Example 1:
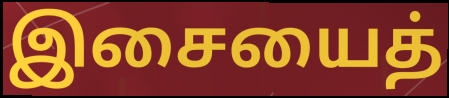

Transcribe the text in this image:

இசையைத்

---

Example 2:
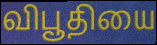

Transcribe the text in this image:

விபூதியை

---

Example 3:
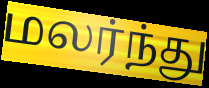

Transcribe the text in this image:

மலர்ந்து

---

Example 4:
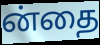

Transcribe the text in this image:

ன்தை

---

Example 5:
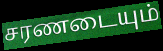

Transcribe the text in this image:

சரணடையும்